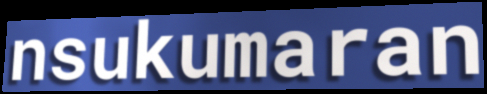
nsukumaran